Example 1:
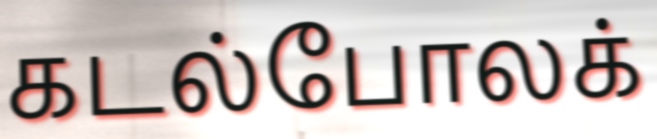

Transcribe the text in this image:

கடல்போலக்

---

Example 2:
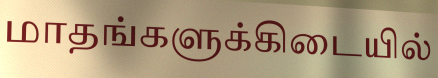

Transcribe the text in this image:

மாதங்களுக்கிடையில்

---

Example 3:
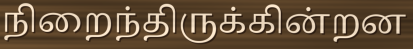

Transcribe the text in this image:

நிறைந்திருக்கின்றன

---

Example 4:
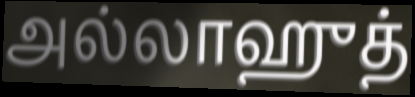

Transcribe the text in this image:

அல்லாஹுத்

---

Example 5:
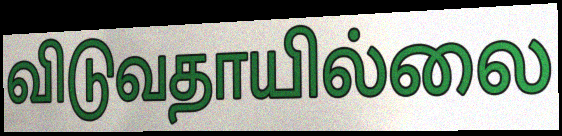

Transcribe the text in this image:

விடுவதாயில்லை